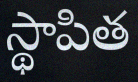
స్థాపిత